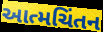
આત્મચિંતન